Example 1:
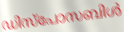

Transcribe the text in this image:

ഡിസ്പോസബിൾ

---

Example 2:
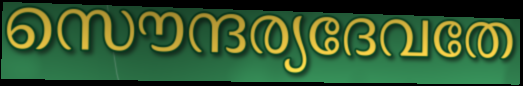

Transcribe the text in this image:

സൌന്ദര്യദേവതേ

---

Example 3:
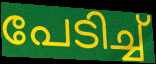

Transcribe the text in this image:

പേടിച്ച്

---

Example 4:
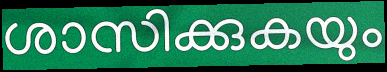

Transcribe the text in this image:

ശാസിക്കുകയും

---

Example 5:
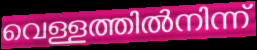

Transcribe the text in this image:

വെള്ളത്തിൽനിന്ന്